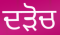
ਦੜੋਚ